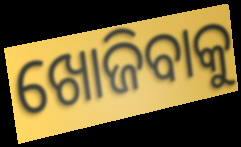
ଖୋଜିବାକୁ